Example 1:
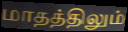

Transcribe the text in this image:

மாதத்திலும்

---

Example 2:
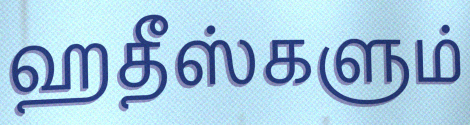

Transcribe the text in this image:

ஹதீஸ்களும்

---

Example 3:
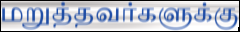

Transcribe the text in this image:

மறுத்தவர்களுக்கு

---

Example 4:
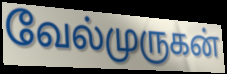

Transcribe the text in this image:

வேல்முருகன்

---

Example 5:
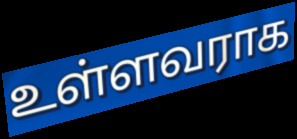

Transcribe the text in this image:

உள்ளவராக